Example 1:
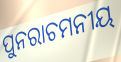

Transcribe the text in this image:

ପୁନରାଚମନୀୟ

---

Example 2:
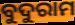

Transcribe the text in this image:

ବୁଦୁରାମ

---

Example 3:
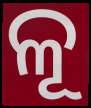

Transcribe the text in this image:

ଳୂ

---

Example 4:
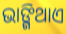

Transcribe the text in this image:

ଭାଙ୍ଗିଥାଏ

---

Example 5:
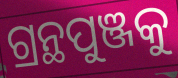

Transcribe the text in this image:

ଗ୍ରନ୍ଥପୁଞ୍ଜକୁ